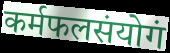
कर्मफलसंयोगं